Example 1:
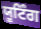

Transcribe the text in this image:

ਯੂਟਿੰਗ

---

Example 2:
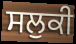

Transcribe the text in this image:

ਸਲੁਕੀ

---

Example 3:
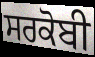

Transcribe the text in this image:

ਸਰਕੋਬੀ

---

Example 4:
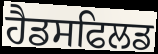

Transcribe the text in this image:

ਹੈਡਸਫਿਲਡ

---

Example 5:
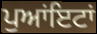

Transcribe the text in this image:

ਪੁਆਂਇਟਾਂ